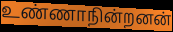
உண்ணாநின்றனன்